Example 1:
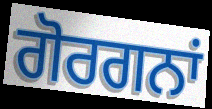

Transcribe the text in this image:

ਗੋਰਗਨਾਂ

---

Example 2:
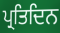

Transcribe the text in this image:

ਪ੍ਰਤਿਦਿਨ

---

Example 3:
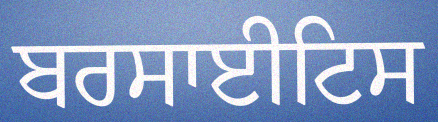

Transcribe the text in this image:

ਬਰਸਾਈਟਿਸ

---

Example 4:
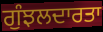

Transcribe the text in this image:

ਗੁੰਝਲਦਾਰਤਾ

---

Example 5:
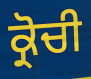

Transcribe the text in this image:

ਕ੍ਰੋਚੀ